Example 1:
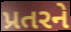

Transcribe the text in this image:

પ્રતરને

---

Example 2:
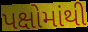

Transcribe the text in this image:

પક્ષોમાંથી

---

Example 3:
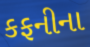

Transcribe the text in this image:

કફનીના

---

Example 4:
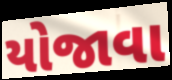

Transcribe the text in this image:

યોજાવા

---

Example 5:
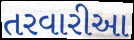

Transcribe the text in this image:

તરવારીઆ